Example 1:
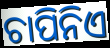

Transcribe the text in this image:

ଚାପିନିଏ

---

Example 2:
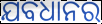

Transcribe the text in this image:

ଯବଧାନର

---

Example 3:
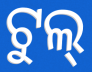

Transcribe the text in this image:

ଟୁଲ୍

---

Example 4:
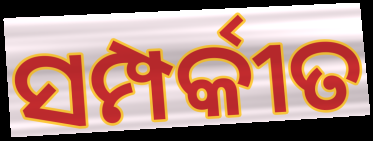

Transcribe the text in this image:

ସମ୍ପର୍କୀତ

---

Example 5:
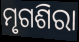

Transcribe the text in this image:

ମୃଗଶିରା